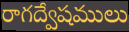
రాగద్వేషములు